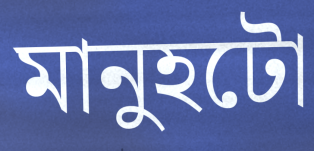
মানুহটো